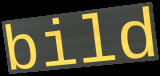
bild